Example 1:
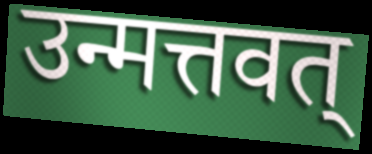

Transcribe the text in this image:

उन्मत्तवत्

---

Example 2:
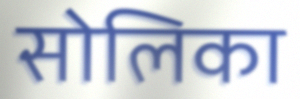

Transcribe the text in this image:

सोलिका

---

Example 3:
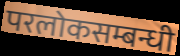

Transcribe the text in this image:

परलोकसम्बन्धी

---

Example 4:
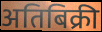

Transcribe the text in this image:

अतिबिक्री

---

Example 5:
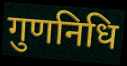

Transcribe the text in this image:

गुणनिधि